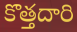
కొత్తదారి